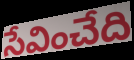
సేవించేది